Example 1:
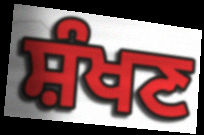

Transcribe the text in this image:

ਸ਼ੰਖਣ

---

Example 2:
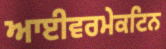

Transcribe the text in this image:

ਆਈਵਰਮੇਕਟਿਨ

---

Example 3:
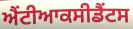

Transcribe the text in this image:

ਐਂਟੀਆਕਸੀਡੈਂਟਸ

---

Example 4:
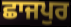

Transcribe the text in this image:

ਛਾਜਪੁਰ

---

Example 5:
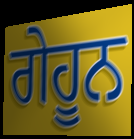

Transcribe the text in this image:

ਗੇਹੂਨ